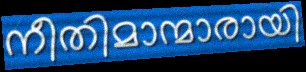
നീതിമാന്മാരായി